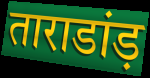
ताराडांड़